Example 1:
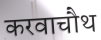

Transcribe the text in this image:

करवाचौथ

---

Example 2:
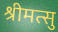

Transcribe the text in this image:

श्रीमत्सु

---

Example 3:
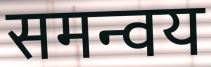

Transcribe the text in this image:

समन्वय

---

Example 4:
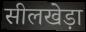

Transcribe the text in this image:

सीलखेड़ा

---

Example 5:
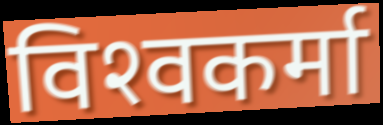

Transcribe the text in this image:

विश्वकर्मा